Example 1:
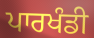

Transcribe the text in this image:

ਪਾਰਖੰਡੀ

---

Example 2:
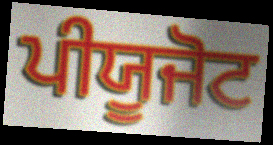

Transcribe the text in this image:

ਪੀਯੂਜੋਟ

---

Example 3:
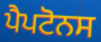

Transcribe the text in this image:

ਪੈਪਟੋਨਸ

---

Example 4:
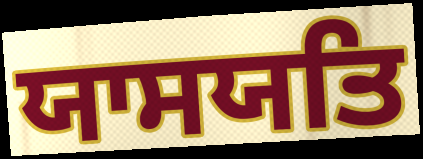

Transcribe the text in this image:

ਯਾਸਯਤਿ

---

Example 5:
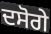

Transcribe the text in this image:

ਦਸੋਗੇ